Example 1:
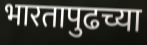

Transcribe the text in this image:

भारतापुढच्या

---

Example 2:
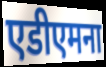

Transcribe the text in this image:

एडीएमना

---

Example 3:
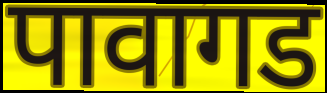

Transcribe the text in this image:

पावागड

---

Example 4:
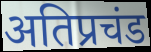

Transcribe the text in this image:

अतिप्रचंड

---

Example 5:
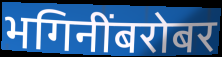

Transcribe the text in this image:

भगिनींबरोबर